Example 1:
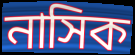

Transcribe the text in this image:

নাসিক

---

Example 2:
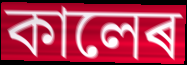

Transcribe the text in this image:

কালেৰ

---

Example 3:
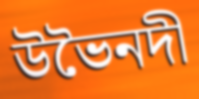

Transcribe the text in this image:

উভৈনদী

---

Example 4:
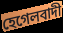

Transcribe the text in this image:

হেগেলবাদী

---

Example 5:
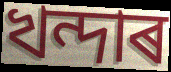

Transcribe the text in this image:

খন্দাৰ